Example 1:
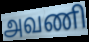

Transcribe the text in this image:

அவணி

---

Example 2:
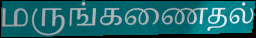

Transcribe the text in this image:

மருங்கணைதல்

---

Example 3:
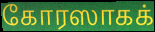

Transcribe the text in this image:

கோரஸாகக்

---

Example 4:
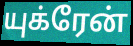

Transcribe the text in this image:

யுக்ரேன்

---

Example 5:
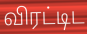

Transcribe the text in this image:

விரட்டிட